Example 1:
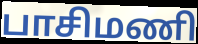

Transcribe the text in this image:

பாசிமணி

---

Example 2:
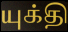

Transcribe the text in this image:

யுக்தி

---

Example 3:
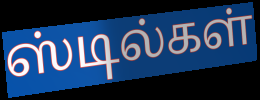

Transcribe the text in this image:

ஸ்டில்கள்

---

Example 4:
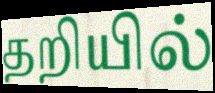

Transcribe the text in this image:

தறியில்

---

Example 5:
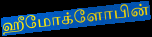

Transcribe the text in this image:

ஹீமோக்ளோபின்